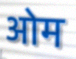
ओम